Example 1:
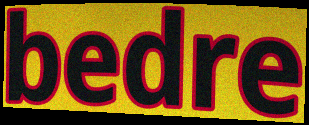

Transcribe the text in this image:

bedre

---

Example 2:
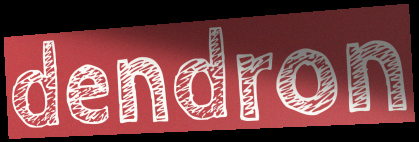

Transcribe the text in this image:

dendron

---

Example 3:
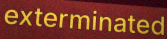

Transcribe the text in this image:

exterminated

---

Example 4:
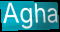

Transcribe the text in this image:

Agha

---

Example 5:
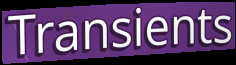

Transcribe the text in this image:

Transients